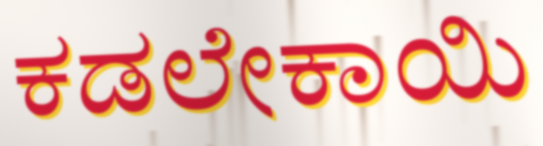
ಕಡಲೇಕಾಯಿ